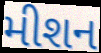
મીશન